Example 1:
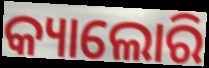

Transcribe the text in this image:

କ୍ୟାଲୋରି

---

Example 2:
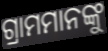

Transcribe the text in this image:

ଗ୍ରାମମାନଙ୍କୁ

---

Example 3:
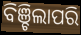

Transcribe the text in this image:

ବିଞ୍ଚିଲାପରି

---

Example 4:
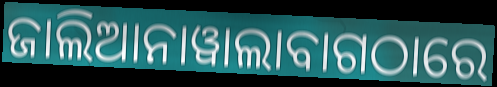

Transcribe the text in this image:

ଜାଲିଆନାୱାଲାବାଗଠାରେ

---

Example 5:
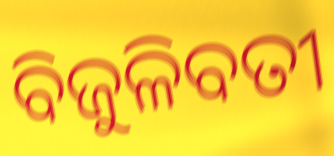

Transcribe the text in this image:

ବିଜୁଳିବତୀ